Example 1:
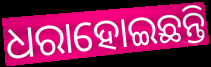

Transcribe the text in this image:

ଧରାହୋଇଛନ୍ତି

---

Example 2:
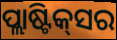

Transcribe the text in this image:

ପ୍ଲାଷ୍ଟିକ୍‌ସର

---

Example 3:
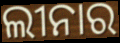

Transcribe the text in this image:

ଲୀନାର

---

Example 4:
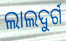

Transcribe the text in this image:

ଲାଲଦୁର୍ଗ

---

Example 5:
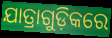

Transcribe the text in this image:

ଯାତ୍ରାଗୁଡ଼ିକରେ